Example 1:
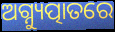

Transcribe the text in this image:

ଅଗ୍ନ୍ୟୁତ୍ପାତରେ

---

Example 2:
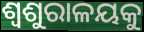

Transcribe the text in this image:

ଶ୍ୱଶୁରାଳୟକୁ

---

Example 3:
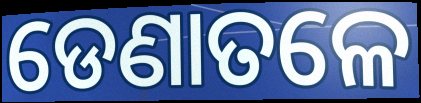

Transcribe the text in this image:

ଡେଣାତଳେ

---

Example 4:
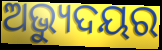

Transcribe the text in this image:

ଅଭ୍ୟୁଦୟର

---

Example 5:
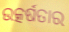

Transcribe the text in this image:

ଉତ୍କର୍ଷତାର